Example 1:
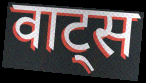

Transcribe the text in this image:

वाट्स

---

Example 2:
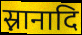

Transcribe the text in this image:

स्नानादि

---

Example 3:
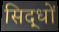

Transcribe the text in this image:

सिद्धों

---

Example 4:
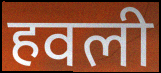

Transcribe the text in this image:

हवली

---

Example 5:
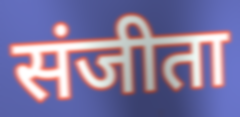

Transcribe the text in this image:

संजीता